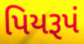
પિયરૂપં